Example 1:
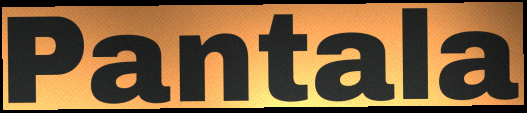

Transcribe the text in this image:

Pantala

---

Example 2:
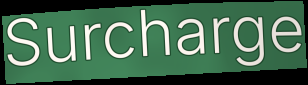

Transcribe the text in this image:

Surcharge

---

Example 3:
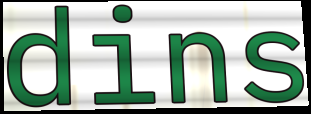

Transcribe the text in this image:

dins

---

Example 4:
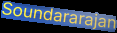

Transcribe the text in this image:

Soundararajan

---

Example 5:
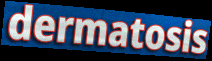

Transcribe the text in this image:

dermatosis